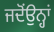
ਜਦੋਂਉਨ੍ਹਾਂ